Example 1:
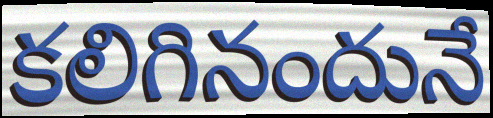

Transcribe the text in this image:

కలిగినందునే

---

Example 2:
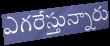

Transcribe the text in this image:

ఎగరేస్తున్నారు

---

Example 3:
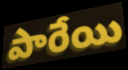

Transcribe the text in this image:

పారేయి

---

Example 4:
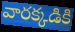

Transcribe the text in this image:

వారక్కడికి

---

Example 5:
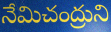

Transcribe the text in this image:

నేమిచంద్రుని